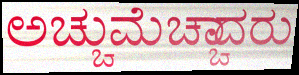
ಅಚ್ಚುಮೆಚ್ಚಾದರು